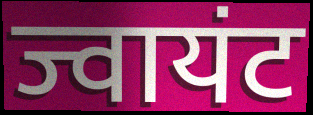
ज्वायंट